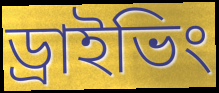
ড্ৰাইভিং